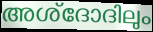
അശ്ദോദിലും